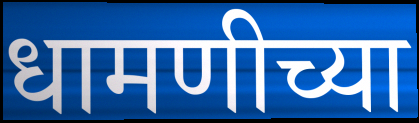
धामणीच्या